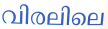
വിരലിലെ